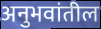
अनुभवांतील